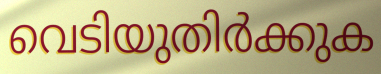
വെടിയുതിർക്കുക